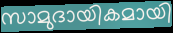
സാമുദായികമായി